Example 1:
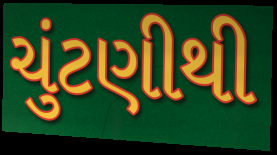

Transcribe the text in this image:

ચુંટણીથી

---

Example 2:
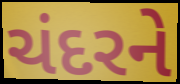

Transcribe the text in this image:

ચંદરને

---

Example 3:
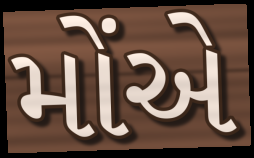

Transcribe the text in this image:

મોંએ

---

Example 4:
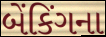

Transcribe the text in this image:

બેંકિંગના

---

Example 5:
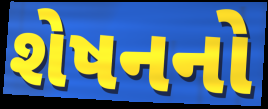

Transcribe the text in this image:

શેષનનો